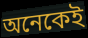
অনেকেই